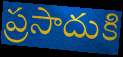
ప్రసాదుకి